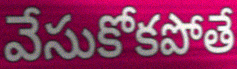
వేసుకోకపోతే